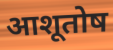
आशूतोष